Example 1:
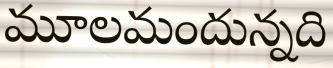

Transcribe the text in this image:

మూలమందున్నది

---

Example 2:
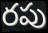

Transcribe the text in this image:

రపు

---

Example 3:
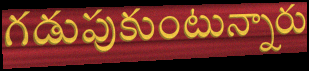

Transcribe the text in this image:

గడుపుకుంటున్నారు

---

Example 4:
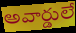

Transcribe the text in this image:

అవార్డులే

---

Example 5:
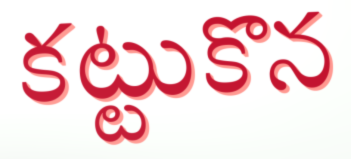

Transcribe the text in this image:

కట్టుకొన